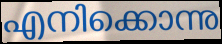
എനിക്കൊന്നു